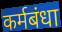
कर्मबंधा